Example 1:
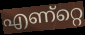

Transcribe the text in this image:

എണ്റ്റെ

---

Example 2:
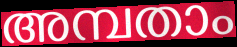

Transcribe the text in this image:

അമ്പതാം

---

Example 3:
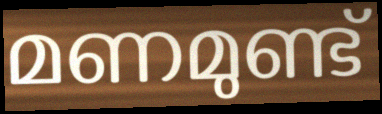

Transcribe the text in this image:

മണമുണ്ട്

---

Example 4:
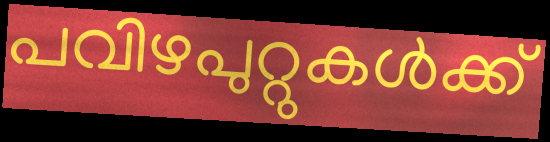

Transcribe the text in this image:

പവിഴപുറ്റുകൾക്ക്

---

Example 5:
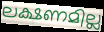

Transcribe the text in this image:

ലക്ഷണമില്ല